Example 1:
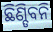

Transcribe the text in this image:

ଛିଣ୍ଡିବନି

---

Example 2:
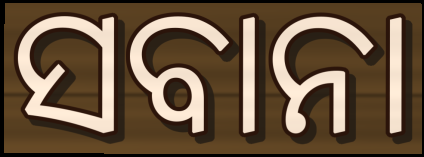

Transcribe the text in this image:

ସବାନା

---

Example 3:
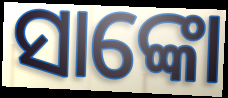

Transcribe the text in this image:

ସାଙ୍କୋ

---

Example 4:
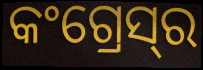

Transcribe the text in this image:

କଂଗ୍ରେସ୍‌ର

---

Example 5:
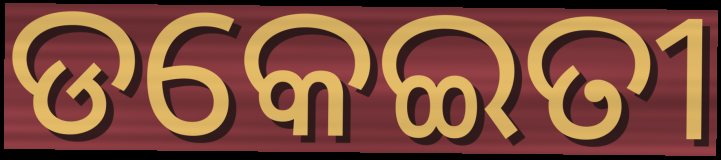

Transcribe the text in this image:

ଡକେଇତୀ